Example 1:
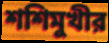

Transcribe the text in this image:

শশিমুখীর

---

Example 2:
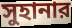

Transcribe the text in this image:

সুহানার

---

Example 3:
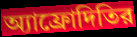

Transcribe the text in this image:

অ্যাফ্রোদিতির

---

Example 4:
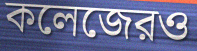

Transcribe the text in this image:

কলেজেরও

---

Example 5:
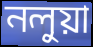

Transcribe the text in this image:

নলুয়া